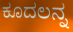
ಕೂದಲನ್ನ